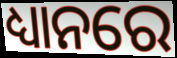
ଧ୍ୟାନରେ